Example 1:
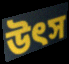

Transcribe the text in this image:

উৎস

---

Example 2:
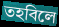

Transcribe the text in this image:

তহবিলে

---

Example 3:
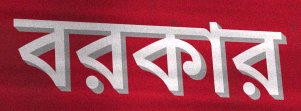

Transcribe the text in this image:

বরকার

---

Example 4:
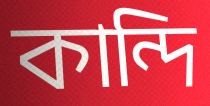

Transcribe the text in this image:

কান্দি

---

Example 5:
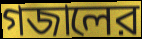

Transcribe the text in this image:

গজালের